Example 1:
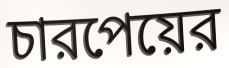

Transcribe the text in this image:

চারপেয়ের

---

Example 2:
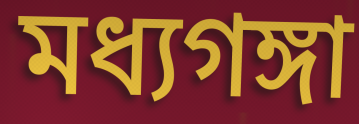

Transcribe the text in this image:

মধ্যগঙ্গা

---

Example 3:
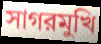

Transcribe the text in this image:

সাগরমুখি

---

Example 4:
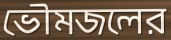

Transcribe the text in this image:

ভৌমজলের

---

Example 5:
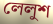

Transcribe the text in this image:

লেলুশ